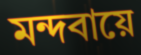
মন্দবায়ে